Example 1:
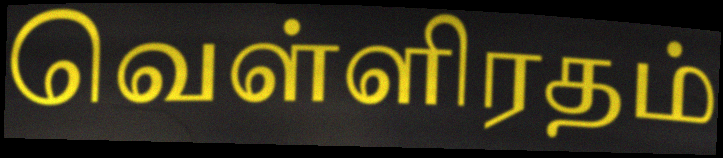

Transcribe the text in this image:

வெள்ளிரதம்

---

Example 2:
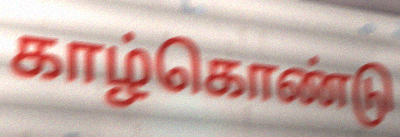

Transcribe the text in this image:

காழ்கொண்டு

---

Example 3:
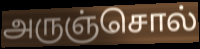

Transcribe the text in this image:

அருஞ்சொல்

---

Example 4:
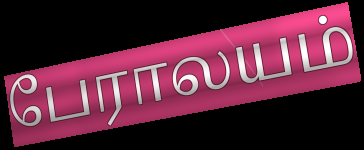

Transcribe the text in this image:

பேராலயம்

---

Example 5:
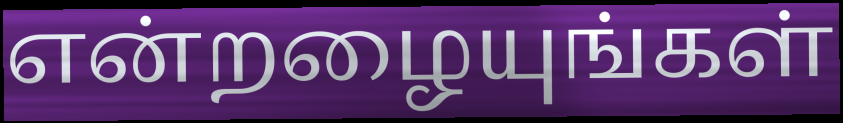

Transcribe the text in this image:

என்றழையுங்கள்